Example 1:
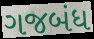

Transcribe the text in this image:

ગજબંધ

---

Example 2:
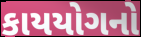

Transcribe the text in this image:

કાયયોગનો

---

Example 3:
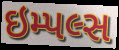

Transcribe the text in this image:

ઇમ્પલ્સ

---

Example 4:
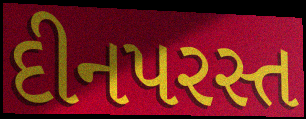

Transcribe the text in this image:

દીનપરસ્ત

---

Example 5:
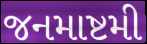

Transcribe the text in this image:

જનમાષ્ટમી